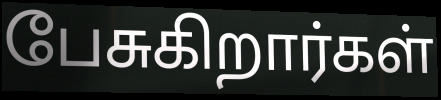
பேசுகிறார்கள்